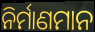
ନିର୍ମାଣମାନ